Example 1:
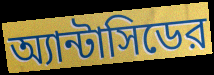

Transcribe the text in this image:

অ্যান্টাসিডের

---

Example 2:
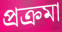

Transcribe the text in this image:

প্রক্রমা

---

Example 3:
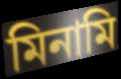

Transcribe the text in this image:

মিনামি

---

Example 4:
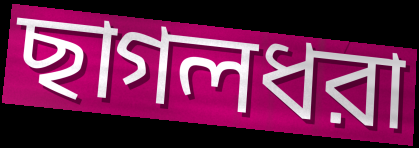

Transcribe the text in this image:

ছাগলধরা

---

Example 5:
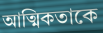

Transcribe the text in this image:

আত্মিকতাকে